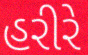
હરીરે